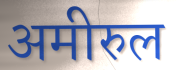
अमीरुल